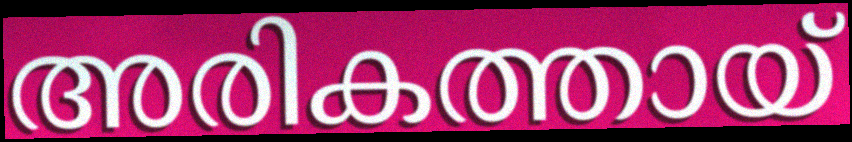
അരികത്തായ്